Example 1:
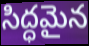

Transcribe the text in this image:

సిద్ధమైన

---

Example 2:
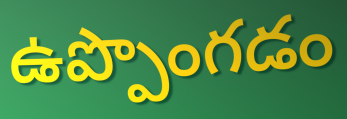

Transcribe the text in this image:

ఉప్పొంగడం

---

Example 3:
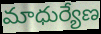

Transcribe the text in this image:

మాధుర్యేణ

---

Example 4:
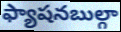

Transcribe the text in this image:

ఫ్యాషనబుల్గా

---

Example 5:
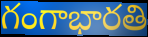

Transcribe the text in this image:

గంగాభారతి